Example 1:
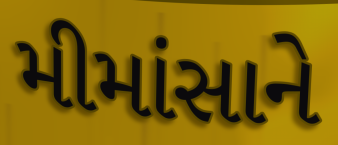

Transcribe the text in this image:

મીમાંસાને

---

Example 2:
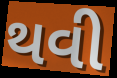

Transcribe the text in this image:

થવી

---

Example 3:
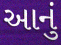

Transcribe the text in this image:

આનું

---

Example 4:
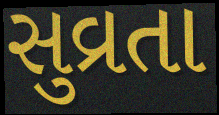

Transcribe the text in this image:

સુવ્રતા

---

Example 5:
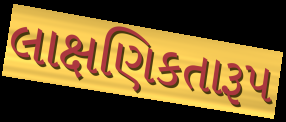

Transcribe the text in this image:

લાક્ષણિકતારૂપ